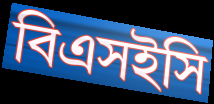
বিএসইসি